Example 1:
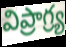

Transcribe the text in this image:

విప్రాగ్ర్య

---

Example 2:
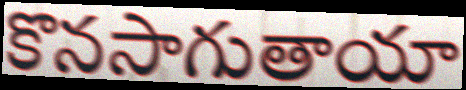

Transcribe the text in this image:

కొనసాగుతాయా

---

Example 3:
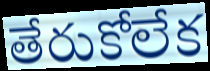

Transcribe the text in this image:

తేరుకోలేక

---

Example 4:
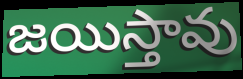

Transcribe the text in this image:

జయిస్తావు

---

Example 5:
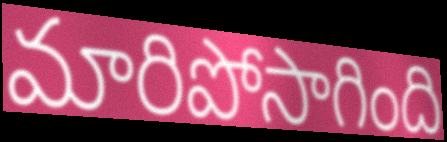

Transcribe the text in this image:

మారిపోసాగింది